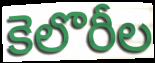
కెలొరీల